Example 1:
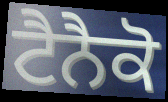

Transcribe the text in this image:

ਟੈਨੈਕੋ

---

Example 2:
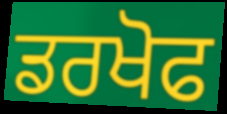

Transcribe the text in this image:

ਡਰਖੋਫ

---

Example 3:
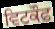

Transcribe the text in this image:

ਵਿਟਕੌਫ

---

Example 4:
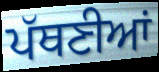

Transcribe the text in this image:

ਪੱਥਣੀਆਂ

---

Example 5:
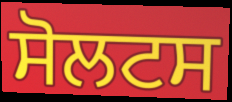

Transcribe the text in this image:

ਸੋਲਟਸ